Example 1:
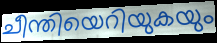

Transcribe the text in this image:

ചീന്തിയെറിയുകയും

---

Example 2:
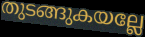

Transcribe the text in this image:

തുടങ്ങുകയല്ലേ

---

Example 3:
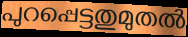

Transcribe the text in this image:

പുറപ്പെട്ടതുമുതൽ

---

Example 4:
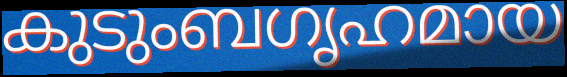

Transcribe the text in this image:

കുടുംബഗൃഹമായ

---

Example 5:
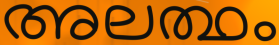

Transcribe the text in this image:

അലത്ഥം